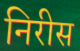
निरीस